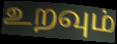
உறவும்